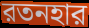
রতনহার